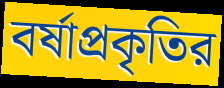
বর্ষাপ্রকৃতির